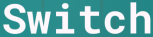
Switch